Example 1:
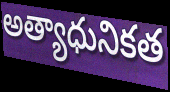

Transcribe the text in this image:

అత్యాధునికత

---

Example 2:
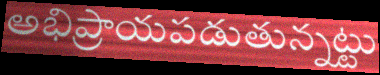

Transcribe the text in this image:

అభిప్రాయపడుతున్నట్టు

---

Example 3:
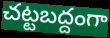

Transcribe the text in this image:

చట్టబద్దంగా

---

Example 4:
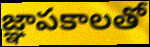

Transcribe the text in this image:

జ్ఞాపకాలతో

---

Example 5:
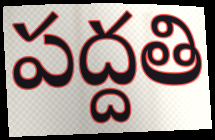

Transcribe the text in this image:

పద్దతి